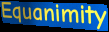
Equanimity